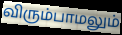
விரும்பாமலும்